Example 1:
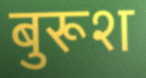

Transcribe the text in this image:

बुरूश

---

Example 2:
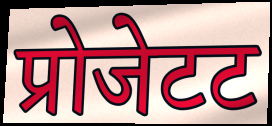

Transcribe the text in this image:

प्रोजेटट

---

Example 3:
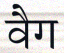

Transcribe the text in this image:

वैग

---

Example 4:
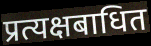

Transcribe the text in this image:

प्रत्यक्षबाधित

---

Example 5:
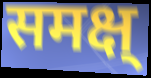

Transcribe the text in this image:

समक्ष्